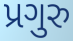
પ્રગુરુ